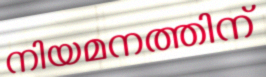
നിയമനത്തിന്